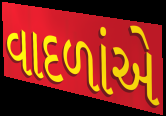
વાદળાંએ